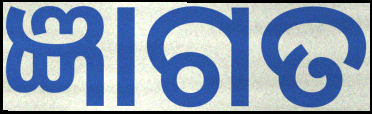
ଜ୍ଞାଗତ